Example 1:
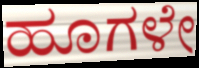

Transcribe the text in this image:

ಹೂಗಳೇ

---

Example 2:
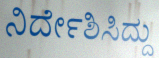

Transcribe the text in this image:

ನಿರ್ದೇಶಿಸಿದ್ದು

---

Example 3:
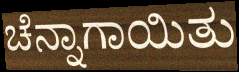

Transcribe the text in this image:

ಚೆನ್ನಾಗಾಯಿತು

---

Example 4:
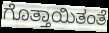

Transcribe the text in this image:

ಗೊತ್ತಾಯಿತಂತೆ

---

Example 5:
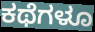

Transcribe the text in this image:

ಕಥೆಗಳೂ